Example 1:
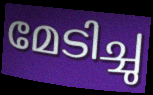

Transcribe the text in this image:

മേടിച്ചു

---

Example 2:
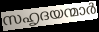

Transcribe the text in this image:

സഹൃദയന്മാർ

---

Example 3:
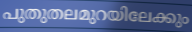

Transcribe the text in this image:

പുതുതലമുറയിലേക്കും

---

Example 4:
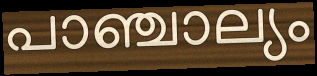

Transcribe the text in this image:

പാഞ്ചാല്യം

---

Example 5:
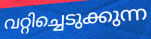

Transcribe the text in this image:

വറ്റിച്ചെടുക്കുന്ന